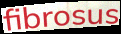
fibrosus